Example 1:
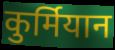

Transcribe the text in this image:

कुर्मियान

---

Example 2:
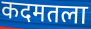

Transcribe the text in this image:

कदमतला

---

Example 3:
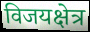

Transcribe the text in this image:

विजयक्षेत्र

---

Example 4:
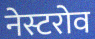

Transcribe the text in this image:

नेस्टरोव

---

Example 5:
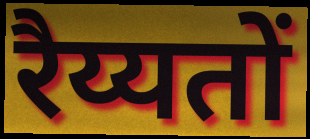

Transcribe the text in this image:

रैय्यतों